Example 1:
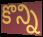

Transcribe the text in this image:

కొన్ని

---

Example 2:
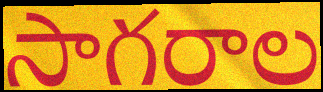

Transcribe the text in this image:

సాగరాల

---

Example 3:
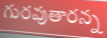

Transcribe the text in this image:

గురవుతారన్న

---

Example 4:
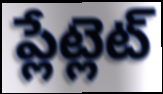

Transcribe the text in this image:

ప్లేట్లెట్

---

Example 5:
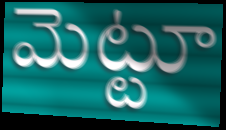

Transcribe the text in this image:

మెట్టూ